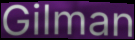
Gilman